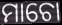
ମାଚୋ